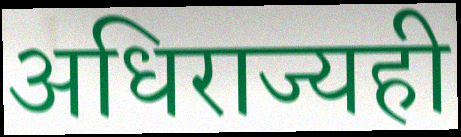
अधिराज्यही